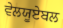
ਵੇਲਯੂਏਬਲ